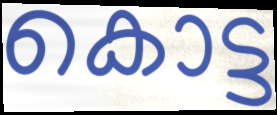
കൊട്ട